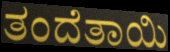
ತಂದೆತಾಯಿ